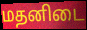
மதனிடை